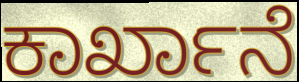
ಕಾರ್ಖಾನೆ